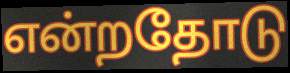
என்றதோடு